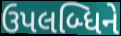
ઉપલબ્ધિને